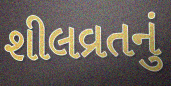
શીલવ્રતનું